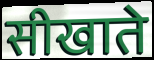
सीखाते